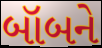
બૉબને